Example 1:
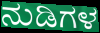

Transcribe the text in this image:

ನುಡಿಗಳ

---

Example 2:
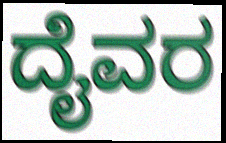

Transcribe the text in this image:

ದೈವರ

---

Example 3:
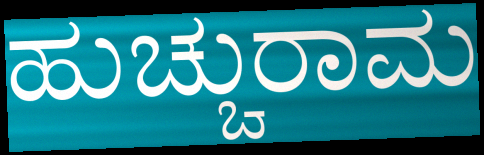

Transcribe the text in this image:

ಹುಚ್ಚುರಾಮ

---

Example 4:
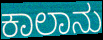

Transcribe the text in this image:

ಕಾಲಾನು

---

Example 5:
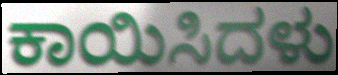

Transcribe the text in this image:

ಕಾಯಿಸಿದಳು